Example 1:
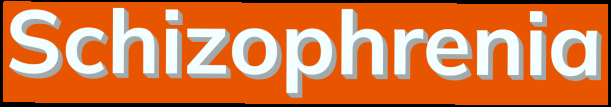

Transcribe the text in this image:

Schizophrenia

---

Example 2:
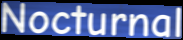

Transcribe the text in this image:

Nocturnal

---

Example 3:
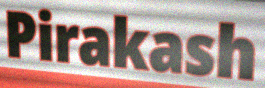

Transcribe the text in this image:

Pirakash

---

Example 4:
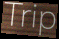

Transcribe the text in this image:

Trip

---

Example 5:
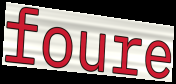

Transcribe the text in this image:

foure